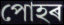
পোহৰ